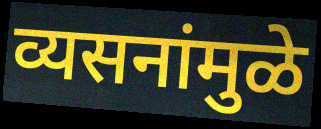
व्यसनांमुळे